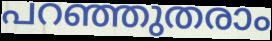
പറഞ്ഞുതരാം